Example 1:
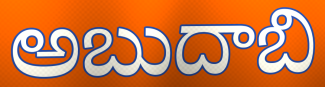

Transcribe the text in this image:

అబుదాబి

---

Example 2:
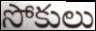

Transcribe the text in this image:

సోకులు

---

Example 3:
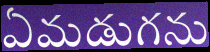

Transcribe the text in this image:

ఏమడుగను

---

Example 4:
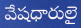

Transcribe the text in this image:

వేషధారులై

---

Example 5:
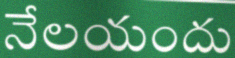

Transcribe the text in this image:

నేలయందు